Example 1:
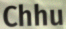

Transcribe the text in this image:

Chhu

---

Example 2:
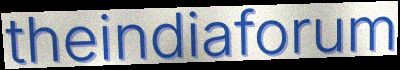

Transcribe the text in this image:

theindiaforum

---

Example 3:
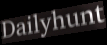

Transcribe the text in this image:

Dailyhunt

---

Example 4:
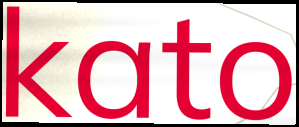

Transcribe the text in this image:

kato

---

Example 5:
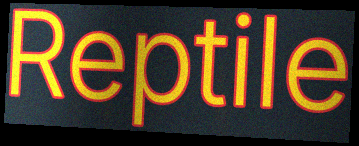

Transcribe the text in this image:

Reptile